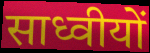
साध्वीयों